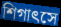
শিগাৎসে